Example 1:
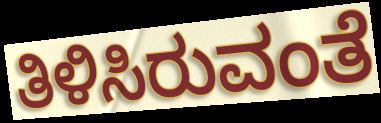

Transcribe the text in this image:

ತಿಳಿಸಿರುವಂತೆ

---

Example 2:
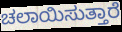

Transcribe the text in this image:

ಚಲಾಯಿಸುತ್ತಾರೆ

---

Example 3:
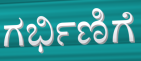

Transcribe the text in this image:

ಗರ್ಭಿಣಿಗೆ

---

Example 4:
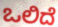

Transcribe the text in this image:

ಒಲಿದೆ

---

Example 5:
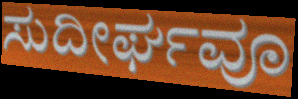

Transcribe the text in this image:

ಸುದೀರ್ಘವೂ